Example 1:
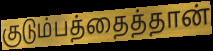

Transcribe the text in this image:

குடும்பத்தைத்தான்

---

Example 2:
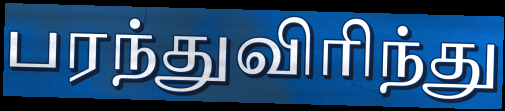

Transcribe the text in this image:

பரந்துவிரிந்து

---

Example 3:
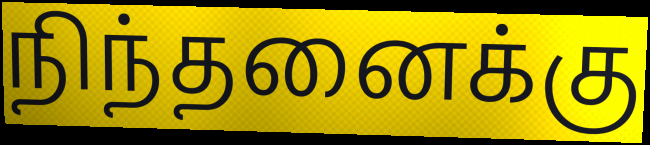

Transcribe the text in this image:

நிந்தனைக்கு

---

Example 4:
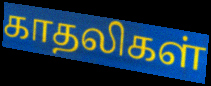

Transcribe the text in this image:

காதலிகள்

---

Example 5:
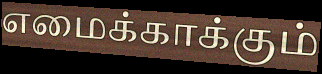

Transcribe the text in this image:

எமைக்காக்கும்